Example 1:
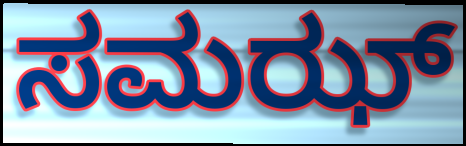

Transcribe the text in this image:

ಸಮಝ್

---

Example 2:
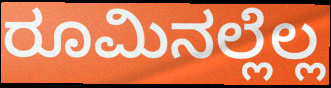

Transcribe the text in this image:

ರೂಮಿನಲ್ಲೆಲ್ಲ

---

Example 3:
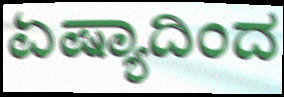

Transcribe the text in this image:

ಏಷ್ಯಾದಿಂದ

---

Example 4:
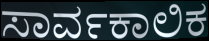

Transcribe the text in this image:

ಸಾರ್ವಕಾಲಿಕ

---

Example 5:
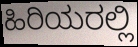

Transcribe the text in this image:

ಹಿರಿಯರಲ್ಲಿ